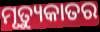
ମୃତ୍ୟୁକାତର